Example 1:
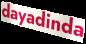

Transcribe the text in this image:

dayadinda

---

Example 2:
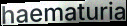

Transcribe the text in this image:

haematuria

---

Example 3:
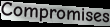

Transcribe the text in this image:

Compromises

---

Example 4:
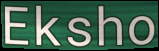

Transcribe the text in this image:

Eksho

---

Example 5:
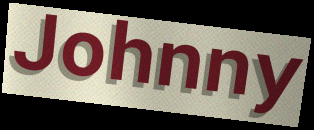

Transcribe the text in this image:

Johnny